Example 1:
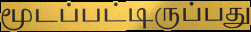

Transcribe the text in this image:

மூடப்பட்டிருப்பது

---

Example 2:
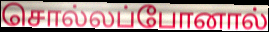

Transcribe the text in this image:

சொல்லப்போனால்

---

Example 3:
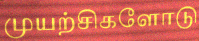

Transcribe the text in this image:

முயற்சிகளோடு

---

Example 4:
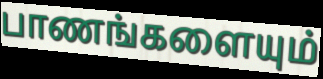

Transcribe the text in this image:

பாணங்களையும்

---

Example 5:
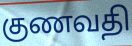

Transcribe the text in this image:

குணவதி